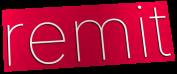
remit